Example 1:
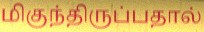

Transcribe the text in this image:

மிகுந்திருப்பதால்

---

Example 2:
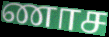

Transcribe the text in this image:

ணாச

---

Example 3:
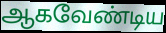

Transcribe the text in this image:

ஆகவேண்டிய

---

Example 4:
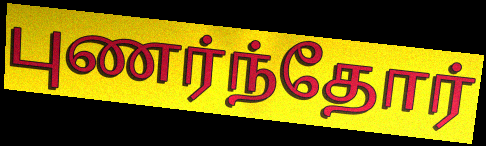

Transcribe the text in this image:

புணர்ந்தோர்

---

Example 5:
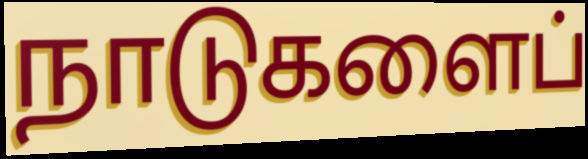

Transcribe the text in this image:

நாடுகளைப்